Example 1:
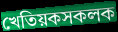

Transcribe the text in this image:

খেতিয়কসকলক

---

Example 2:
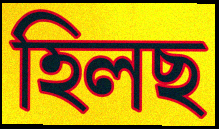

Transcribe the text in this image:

হিলছ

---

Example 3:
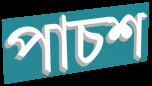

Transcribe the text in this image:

পাচশ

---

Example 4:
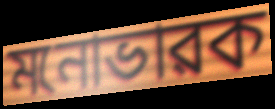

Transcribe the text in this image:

মনোভাৱক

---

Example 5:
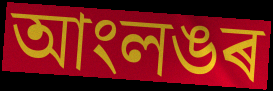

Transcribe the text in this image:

আংলঙৰ